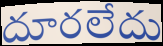
దూరలేదు